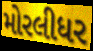
મોરલીધર